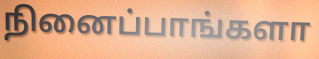
நினைப்பாங்களா